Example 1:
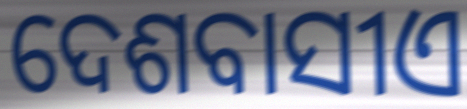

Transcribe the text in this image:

ଦେଶବାସୀଏ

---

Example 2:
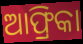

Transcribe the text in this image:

ଆଫ୍ରିକା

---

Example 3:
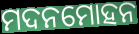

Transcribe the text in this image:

ମଦନମୋହନ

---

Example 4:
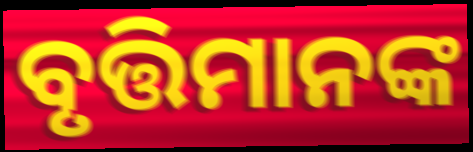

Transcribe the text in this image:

ବୃତ୍ତିମାନଙ୍କ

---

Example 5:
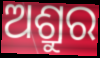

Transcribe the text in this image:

ଅଶ୍ରୁର